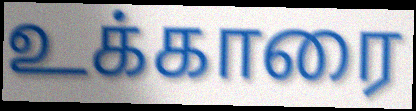
உக்காரை